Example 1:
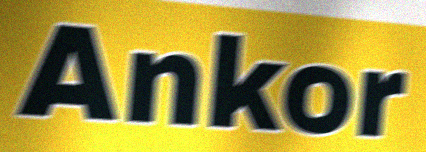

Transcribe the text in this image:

Ankor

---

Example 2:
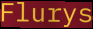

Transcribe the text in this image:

Flurys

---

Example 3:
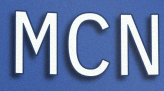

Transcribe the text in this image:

MCN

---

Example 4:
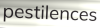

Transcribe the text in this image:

pestilences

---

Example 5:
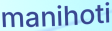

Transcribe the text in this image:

manihoti